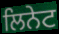
ਲਿਨੇਟ